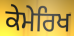
ਕੇਮੇਰਿਖ